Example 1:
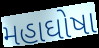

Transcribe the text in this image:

મહાઘોષા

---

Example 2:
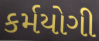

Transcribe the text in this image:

કર્મયોગી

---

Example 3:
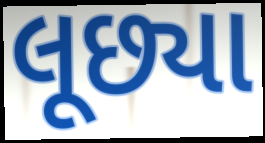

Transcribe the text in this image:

લૂછ્યા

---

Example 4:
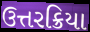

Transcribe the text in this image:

ઉત્તરક્રિયા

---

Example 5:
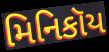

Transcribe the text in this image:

મિનિકૉય